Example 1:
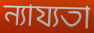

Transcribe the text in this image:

ন্যায্যতা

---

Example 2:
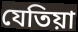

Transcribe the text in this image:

যেতিয়া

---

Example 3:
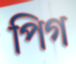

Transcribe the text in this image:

পিগ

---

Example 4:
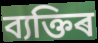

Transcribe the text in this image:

ব্যক্তিৰ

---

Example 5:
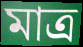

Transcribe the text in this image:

মাত্ৰ